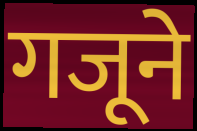
गजूने